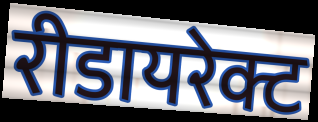
रीडायरेक्ट